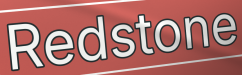
Redstone